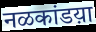
नळकांडय़ा